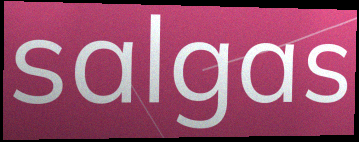
salgas